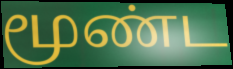
மூண்ட